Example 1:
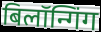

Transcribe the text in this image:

बिलॉन्गिंग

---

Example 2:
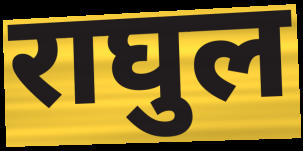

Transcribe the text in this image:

राघुल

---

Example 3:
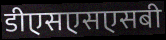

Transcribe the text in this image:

डीएसएसएसबी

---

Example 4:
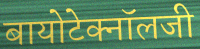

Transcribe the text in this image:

बायोटेक्नॉलजी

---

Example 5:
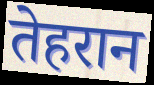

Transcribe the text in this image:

तेहरान